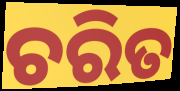
ଚରିତ